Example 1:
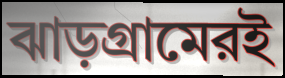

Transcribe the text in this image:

ঝাড়গ্রামেরই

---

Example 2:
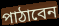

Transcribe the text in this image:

পাঠাবেন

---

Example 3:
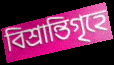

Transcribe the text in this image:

বিশ্রান্তিগৃহে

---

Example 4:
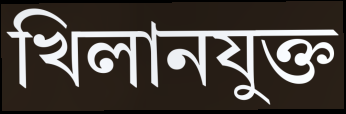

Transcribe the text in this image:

খিলানযুক্ত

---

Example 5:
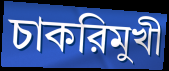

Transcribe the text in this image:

চাকরিমুখী